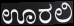
ಊರಲಿ